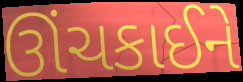
ઊંચકાઈને